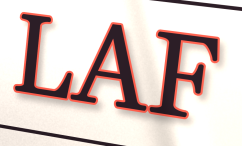
LAF